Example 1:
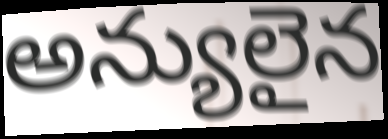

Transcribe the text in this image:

అన్యులైన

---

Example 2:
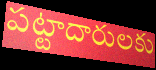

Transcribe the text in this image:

పట్టాదారులకు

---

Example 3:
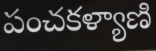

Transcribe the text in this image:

పంచకళ్యాణి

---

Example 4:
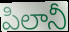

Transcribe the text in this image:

పిలానీ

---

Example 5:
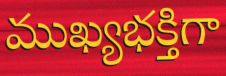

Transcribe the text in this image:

ముఖ్యభక్తిగా